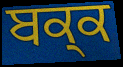
ਬਕ੍ਕ